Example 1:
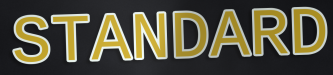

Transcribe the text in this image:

STANDARD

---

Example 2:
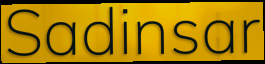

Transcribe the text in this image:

Sadinsar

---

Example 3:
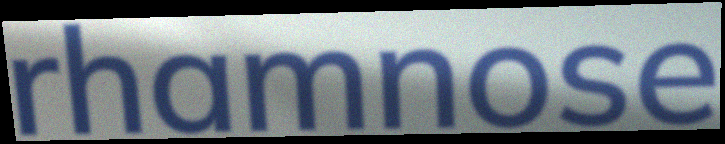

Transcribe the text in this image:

rhamnose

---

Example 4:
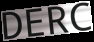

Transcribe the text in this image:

DERC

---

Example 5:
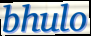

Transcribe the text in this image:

bhulo